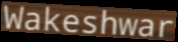
Wakeshwar